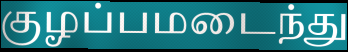
குழப்பமடைந்து